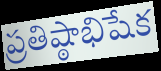
ప్రతిష్ఠాభిషేక